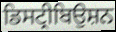
ਡਿਸਟ੍ਰੀਬਿਉਸ਼ਨ